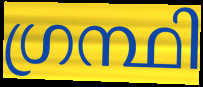
ഗ്രന്ഥി